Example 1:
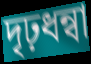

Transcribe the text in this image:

দৃঢ়ধন্বা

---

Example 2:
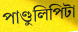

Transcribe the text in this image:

পাণ্ডুলিপিটা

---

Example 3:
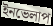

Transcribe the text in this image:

ইনভেলাপ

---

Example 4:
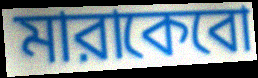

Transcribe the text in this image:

মারাকেবো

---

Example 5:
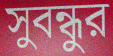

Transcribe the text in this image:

সুবন্ধুর